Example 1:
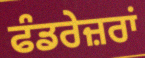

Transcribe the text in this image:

ਫੰਡਰੇਜ਼ਰਾਂ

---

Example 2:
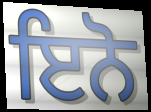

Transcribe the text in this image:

ਇਨੋ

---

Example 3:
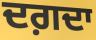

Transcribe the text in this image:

ਦਗ਼ਦਾ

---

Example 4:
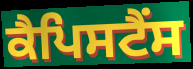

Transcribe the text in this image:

ਕੈਪਿਸਟੈਂਸ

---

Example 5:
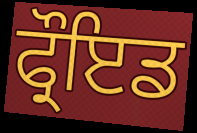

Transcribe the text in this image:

ਫ੍ਰੌਇਡ